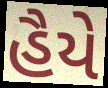
હૈયે